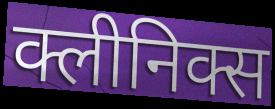
क्लीनिक्स